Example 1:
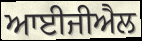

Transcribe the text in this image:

ਆਈਜੀਐਲ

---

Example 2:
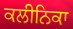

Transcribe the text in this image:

ਕਲੀਨਿਕਾ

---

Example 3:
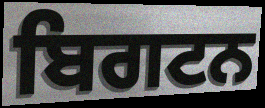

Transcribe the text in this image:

ਬਿਗਟਨ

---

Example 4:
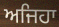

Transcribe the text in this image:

ਅਜਿਹਾ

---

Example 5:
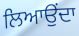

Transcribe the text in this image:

ਲਿਆਉਂਦਾ